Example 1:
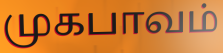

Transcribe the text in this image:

முகபாவம்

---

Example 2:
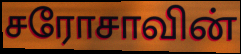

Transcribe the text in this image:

சரோசாவின்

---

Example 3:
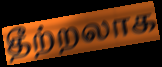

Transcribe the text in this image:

தீற்றலாக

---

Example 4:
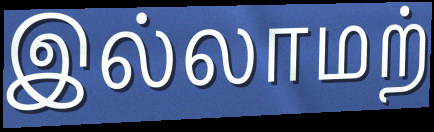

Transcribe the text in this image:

இல்லாமற்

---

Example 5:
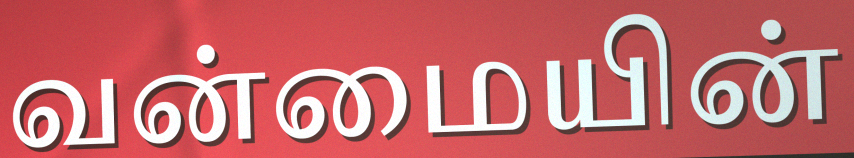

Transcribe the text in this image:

வன்மையின்